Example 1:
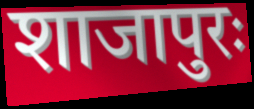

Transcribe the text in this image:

शाजापुरः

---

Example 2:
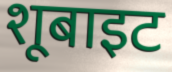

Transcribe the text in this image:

शूबाइट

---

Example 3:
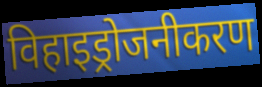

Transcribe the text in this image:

विहाइड्रोजनीकरण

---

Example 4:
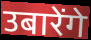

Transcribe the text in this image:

उबारेंगे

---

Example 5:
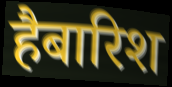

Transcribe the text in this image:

हैबारिश